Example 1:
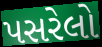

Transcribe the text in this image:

પસરેલો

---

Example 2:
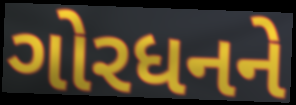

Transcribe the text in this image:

ગોરધનને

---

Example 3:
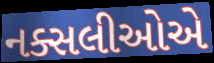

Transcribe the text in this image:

નક્સલીઓએ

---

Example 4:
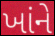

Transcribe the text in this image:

ખાંને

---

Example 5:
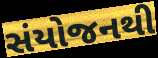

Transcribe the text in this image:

સંયોજનથી